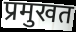
प्रमुखत